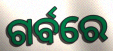
ଗର୍ବରେ